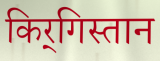
किर्गिस्तान